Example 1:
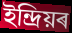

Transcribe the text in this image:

ইন্দ্ৰিয়ৰ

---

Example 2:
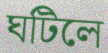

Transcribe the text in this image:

ঘটিলে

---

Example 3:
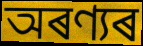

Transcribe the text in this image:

অৰণ্যৰ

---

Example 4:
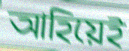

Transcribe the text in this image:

আহিয়েই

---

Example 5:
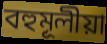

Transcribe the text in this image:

বহুমূলীয়া